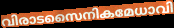
വിരാടസൈനികമേധാവി